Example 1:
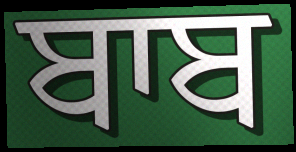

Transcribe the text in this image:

ਬਾਬ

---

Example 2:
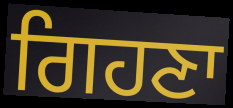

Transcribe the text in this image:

ਗਿਹਣਾ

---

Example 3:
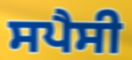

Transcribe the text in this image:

ਸਪੈਸੀ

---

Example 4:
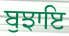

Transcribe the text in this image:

ਬੁਝਾਇ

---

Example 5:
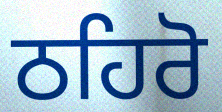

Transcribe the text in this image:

ਠਹਿਰੋ